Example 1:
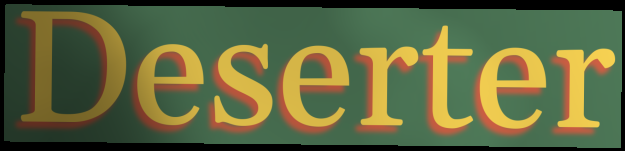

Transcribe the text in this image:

Deserter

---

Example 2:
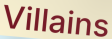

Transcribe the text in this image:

Villains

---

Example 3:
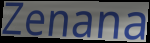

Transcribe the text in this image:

Zenana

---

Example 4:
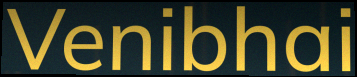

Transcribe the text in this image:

Venibhai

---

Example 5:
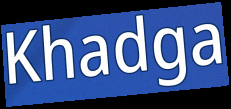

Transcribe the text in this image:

Khadga